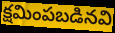
క్షమింపబడినవి